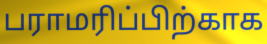
பராமரிப்பிற்காக